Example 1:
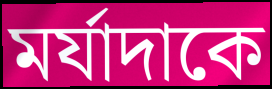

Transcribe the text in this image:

মর্যাদাকে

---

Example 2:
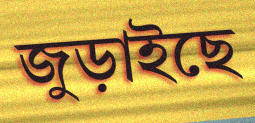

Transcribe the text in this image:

জুড়াইছে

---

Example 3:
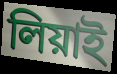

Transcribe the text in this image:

লিয়াই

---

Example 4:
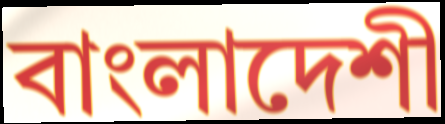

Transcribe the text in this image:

বাংলাদেশী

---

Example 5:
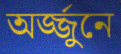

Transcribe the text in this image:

অর্জ্জুনে